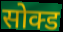
सोक्ड